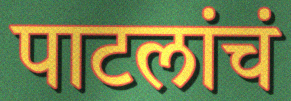
पाटलांचं